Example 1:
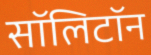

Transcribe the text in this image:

सॉलिटॉन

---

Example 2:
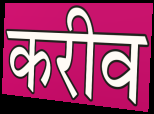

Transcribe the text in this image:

करीव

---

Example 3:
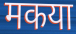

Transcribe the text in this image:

मकया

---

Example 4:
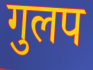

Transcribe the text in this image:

गुलप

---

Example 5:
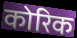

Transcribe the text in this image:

कोरिक